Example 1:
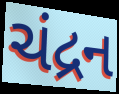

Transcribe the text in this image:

ચંદ્રન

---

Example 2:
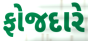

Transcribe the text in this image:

ફોજદારે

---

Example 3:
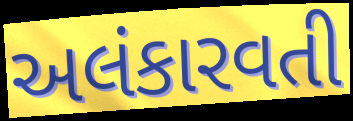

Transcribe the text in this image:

અલંકારવતી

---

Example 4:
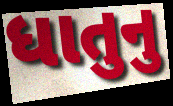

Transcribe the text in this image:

ધાતુનુ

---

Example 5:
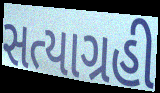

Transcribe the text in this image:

સત્યાગ્રહી